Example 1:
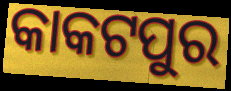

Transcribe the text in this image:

କାକଟପୁର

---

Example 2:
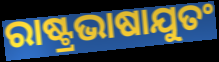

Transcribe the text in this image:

ରାଷ୍ଟ୍ରଭାଷାଯୁତଂ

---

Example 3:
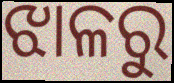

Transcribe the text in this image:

ଝାଳରୁ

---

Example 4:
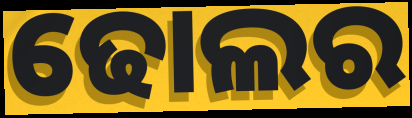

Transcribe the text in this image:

ଢୋଲର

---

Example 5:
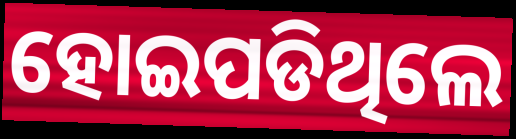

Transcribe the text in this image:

ହୋଇପଡିଥିଲେ